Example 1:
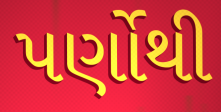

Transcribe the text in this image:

પર્ણોથી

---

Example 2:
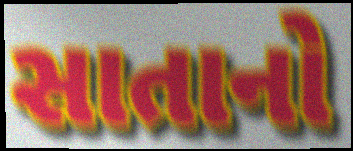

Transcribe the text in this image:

સાતાનો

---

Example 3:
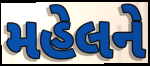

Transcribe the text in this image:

મહેલને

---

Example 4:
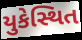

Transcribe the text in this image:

યુકેસ્થિત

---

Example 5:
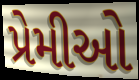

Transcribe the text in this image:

પ્રેમીઓ